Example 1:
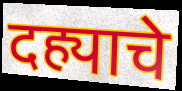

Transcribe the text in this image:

दह्याचे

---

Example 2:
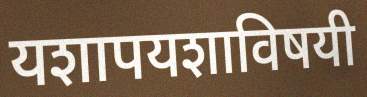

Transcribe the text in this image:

यशापयशाविषयी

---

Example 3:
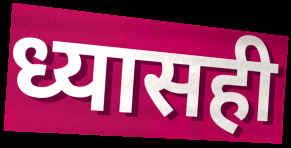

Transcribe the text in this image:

ध्यासही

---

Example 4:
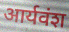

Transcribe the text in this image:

आर्यवंश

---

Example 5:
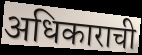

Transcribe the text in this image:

अधिकाराची